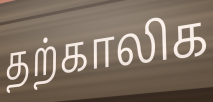
தற்காலிக